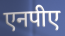
एनपीए